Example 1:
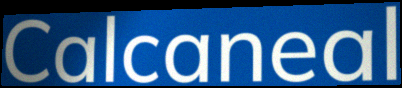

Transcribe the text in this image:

Calcaneal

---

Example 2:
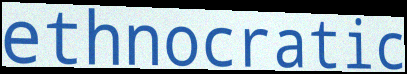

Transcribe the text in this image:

ethnocratic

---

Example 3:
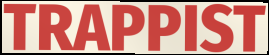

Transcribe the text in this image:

TRAPPIST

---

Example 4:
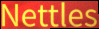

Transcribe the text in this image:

Nettles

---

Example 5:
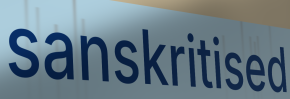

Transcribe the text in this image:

sanskritised